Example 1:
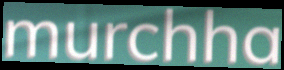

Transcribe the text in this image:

murchha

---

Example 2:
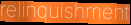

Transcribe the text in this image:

relinquishment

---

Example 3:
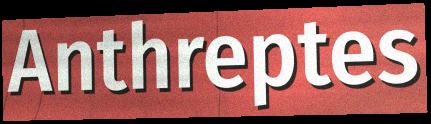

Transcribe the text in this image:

Anthreptes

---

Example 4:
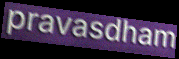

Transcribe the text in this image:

pravasdham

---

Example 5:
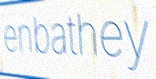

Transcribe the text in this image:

enbathey